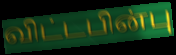
விட்டபின்பு